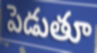
పెడుతూ